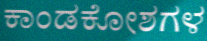
ಕಾಂಡಕೋಶಗಳ